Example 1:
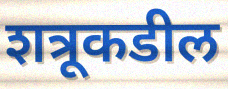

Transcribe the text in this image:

शत्रूकडील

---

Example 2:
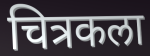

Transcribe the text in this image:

चित्रकला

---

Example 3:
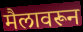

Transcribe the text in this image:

मैलावरून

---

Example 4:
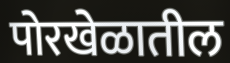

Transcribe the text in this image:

पोरखेळातील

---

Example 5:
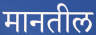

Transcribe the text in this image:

मानतील